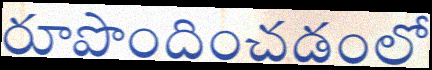
రూపొందించడంలో